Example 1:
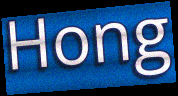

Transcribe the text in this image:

Hong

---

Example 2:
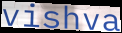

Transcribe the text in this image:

vishva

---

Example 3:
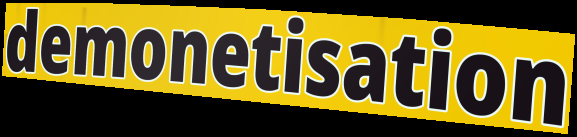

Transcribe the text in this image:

demonetisation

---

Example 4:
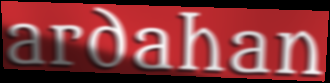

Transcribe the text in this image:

ardahan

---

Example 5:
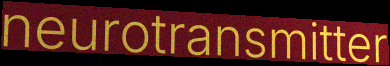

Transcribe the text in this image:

neurotransmitter